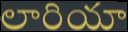
లారియా